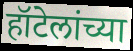
हॉटेलांच्या